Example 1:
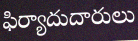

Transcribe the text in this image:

ఫిర్యాదుదారులు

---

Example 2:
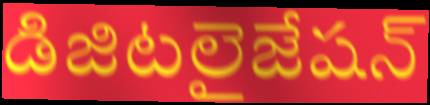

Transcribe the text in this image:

డిజిటలైజేషన్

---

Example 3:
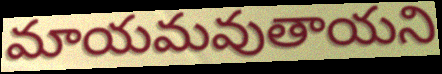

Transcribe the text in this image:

మాయమవుతాయని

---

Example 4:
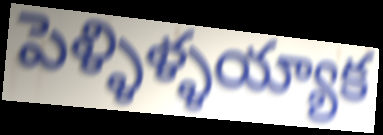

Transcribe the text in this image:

పెళ్ళిళ్ళయ్యాక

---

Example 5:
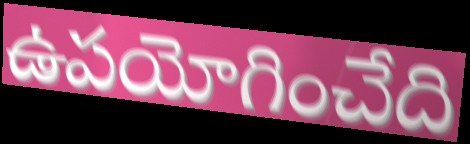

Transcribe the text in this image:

ఉపయోగించేది